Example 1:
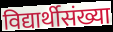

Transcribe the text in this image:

विद्यार्थीसंख्या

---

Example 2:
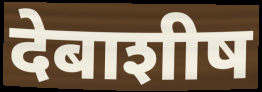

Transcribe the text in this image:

देबाशीष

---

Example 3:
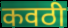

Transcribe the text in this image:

कवठी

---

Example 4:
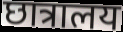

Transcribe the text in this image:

छात्रालय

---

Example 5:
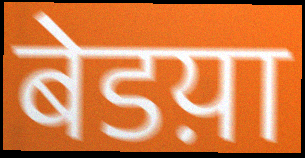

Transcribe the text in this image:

बेडय़ा